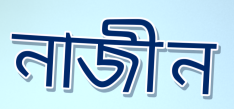
নাজীন